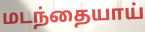
மடந்தையாய்